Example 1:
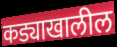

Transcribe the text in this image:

कड्याखालील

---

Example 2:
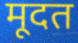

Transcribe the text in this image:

मूदत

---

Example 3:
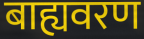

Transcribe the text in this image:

बाह्यवरण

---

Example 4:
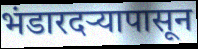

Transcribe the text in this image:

भंडारदऱ्यापासून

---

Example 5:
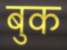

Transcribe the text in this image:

बुक